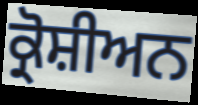
ਕ੍ਰੋਸ਼ੀਅਨ